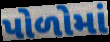
પોળોમાં